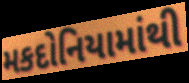
મકદોનિયામાંથી